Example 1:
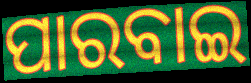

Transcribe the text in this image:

ପାରବାଇ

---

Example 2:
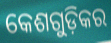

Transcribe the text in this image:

କେଶଗୁଡ଼ିକର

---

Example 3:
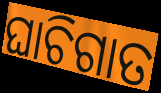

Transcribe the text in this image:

ଘାଚିଗାତ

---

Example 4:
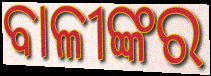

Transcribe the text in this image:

ବାଳୀଙ୍କର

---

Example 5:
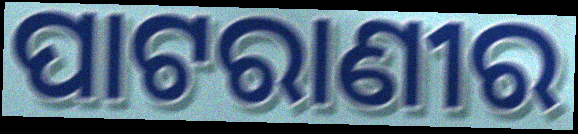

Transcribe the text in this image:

ପାଟରାଣୀର